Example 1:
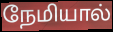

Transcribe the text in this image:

நேமியால்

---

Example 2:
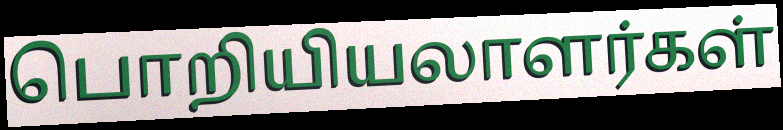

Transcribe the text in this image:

பொறியியலாளர்கள்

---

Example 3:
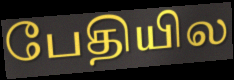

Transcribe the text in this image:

பேதியில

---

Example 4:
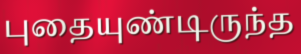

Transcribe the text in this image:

புதையுண்டிருந்த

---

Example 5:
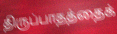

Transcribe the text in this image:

திருப்பாதத்தைக்